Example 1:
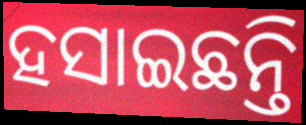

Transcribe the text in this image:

ହସାଇଛନ୍ତି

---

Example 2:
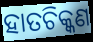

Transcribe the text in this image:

ହାତଚିକ୍କଣ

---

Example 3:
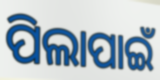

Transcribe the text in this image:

ପିଲାପାଇଁ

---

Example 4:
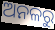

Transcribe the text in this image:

ଅନଳରୁ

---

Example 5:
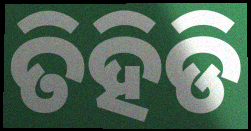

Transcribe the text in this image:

ତିହିଡି